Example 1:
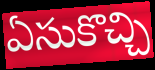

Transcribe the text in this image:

ఏసుకొచ్చి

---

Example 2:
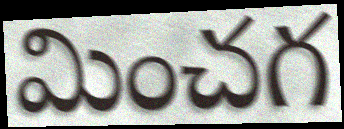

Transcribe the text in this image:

మించగ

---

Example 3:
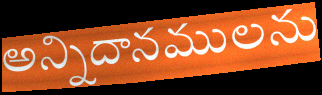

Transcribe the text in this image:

అన్నిదానములను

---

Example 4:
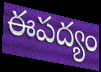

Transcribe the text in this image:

ఈపద్యం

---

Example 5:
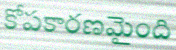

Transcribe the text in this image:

కోపకారణమైంది